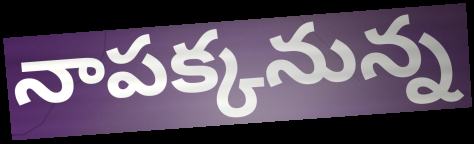
నాపక్కనున్న